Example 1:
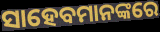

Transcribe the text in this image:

ସାହେବମାନଙ୍କରେ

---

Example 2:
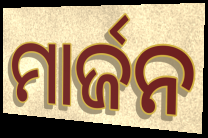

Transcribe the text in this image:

ମାର୍ଜନ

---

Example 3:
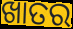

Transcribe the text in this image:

ଖାତର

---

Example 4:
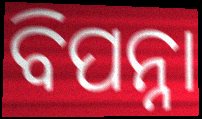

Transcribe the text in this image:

ବିପନ୍ନା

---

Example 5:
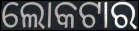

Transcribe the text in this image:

ଲୋକଟାର